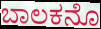
ಬಾಲಕನೊ